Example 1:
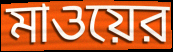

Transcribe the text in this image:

মাওয়ের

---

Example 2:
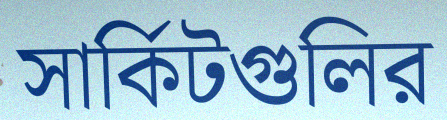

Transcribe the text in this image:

সার্কিটগুলির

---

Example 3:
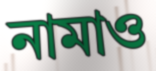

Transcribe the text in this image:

নামাও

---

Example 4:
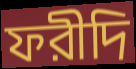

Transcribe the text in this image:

ফরীদি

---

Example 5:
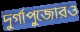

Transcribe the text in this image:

দুর্গাপুজোরও